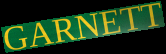
GARNETT